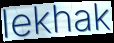
lekhak